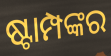
ଷ୍ଟାମ୍ପଙ୍କର